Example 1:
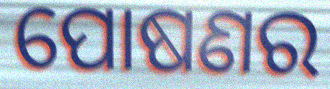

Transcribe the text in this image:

ପୋଷଣର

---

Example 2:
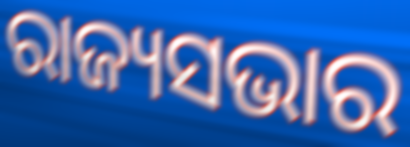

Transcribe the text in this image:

ରାଜ୍ୟସଭାର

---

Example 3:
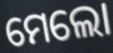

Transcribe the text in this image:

ମେଲୋ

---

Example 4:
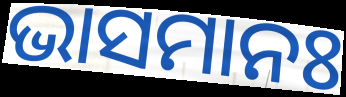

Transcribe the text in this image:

ଭାସମାନଃ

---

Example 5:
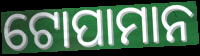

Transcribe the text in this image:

ଟୋପାମାନ